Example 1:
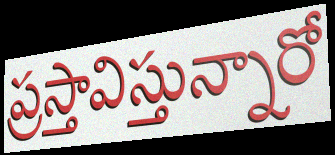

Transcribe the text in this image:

ప్రస్తావిస్తున్నారో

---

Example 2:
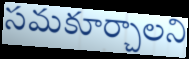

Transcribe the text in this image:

సమకూర్చాలని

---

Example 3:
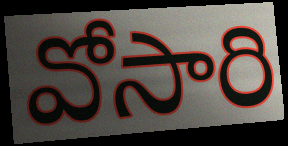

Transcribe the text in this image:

వోసారి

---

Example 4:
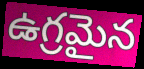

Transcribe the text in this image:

ఉగ్రమైన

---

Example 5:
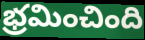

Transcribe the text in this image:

భ్రమించింది